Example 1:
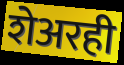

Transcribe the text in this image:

शेअरही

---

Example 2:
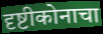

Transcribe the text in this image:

दृष्टीकोनाचा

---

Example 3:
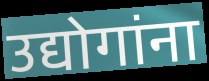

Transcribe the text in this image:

उद्योगांना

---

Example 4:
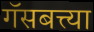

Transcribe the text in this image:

गॅसबत्त्या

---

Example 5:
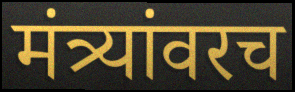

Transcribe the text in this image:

मंत्र्यांवरच